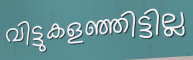
വിട്ടുകളഞ്ഞിട്ടില്ല